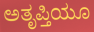
ಅತೃಪ್ತಿಯೂ